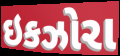
ઇકઝોરા